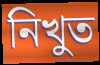
নিখুত